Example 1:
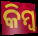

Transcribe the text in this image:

କିମ୍ବ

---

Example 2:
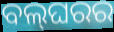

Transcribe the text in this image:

ବଲ୍‌ଘରର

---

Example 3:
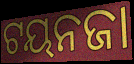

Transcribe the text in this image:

ଟୟନଜା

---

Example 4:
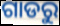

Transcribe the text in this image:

ଗାଡରୁ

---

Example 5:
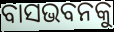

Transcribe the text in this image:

ବାସଭବନକୁ